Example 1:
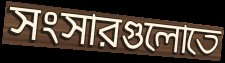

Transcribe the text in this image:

সংসারগুলোতে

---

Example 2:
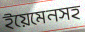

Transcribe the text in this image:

ইয়েমেনসহ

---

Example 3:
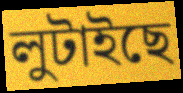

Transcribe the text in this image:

লুটাইছে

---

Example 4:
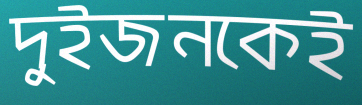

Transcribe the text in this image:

দুইজনকেই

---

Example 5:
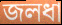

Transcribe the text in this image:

জলধা